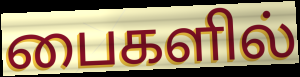
பைகளில்